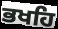
ਭਖਹਿ